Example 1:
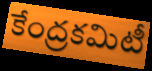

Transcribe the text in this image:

కేంద్రకమిటీ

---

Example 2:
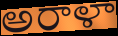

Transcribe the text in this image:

అరాళా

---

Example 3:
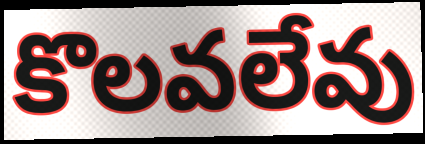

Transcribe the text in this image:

కొలవలేవు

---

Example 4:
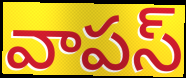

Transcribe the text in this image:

వాపస్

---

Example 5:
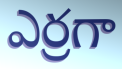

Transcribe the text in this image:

ఎర్రగా